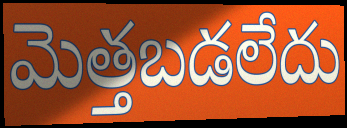
మెత్తబడలేదు